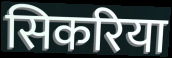
सिकरिया